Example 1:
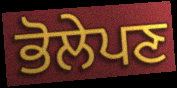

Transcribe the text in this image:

ਭੋਲੇਪਣ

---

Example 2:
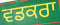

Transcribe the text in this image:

ਵਡਕਰਾ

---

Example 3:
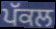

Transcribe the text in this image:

ਪੱਕਲ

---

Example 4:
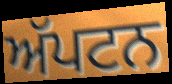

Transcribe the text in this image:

ਅੱਪਟਨ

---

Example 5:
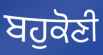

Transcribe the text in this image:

ਬਹੁਕੋਣੀ